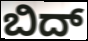
ಬಿದ್